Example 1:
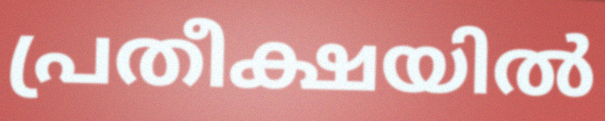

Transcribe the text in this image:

പ്രതീക്ഷയിൽ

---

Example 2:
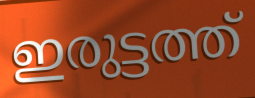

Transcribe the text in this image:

ഇരുട്ടത്ത്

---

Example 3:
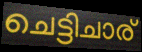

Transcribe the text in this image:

ചെട്ടിചാര്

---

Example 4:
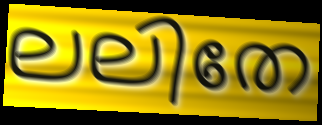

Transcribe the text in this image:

ലലിതേ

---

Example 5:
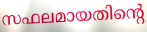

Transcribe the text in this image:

സഫലമായതിന്റെ